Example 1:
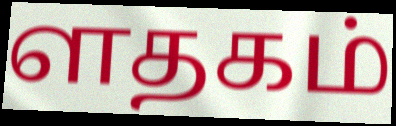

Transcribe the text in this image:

ளதகம்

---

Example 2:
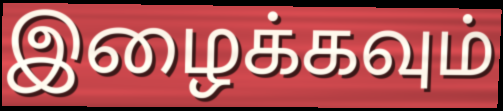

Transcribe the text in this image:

இழைக்கவும்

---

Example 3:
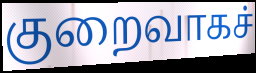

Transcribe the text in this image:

குறைவாகச்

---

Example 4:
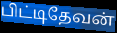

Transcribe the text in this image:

பிட்டிதேவன்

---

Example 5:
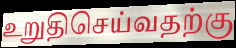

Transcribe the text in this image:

உறுதிசெய்வதற்கு